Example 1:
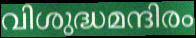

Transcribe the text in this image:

വിശുദ്ധമന്ദിരം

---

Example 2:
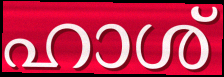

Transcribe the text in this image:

ഹാശ്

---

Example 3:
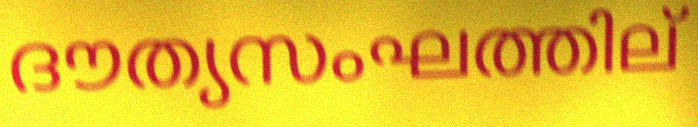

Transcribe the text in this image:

ദൗത്യസംഘത്തില്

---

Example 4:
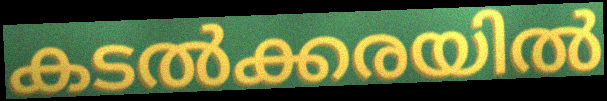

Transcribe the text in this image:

കടൽക്കരയിൽ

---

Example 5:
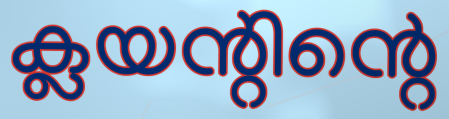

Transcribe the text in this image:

ക്ലയന്റിന്റെ